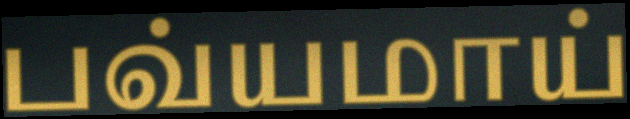
பவ்யமாய்